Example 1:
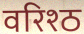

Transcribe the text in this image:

वरिश्ठ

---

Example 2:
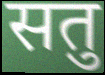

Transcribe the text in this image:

सतु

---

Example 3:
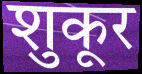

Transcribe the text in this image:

शुकूर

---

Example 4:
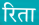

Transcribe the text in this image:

रिता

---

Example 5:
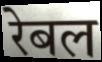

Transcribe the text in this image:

रेबल